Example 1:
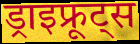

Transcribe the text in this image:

ड्राइफ्रूट्स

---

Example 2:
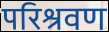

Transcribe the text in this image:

परिश्रवण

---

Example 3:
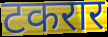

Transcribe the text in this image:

टकरार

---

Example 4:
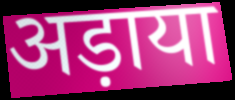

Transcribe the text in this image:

अड़ाया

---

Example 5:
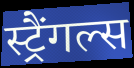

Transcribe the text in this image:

स्ट्रैंगल्स